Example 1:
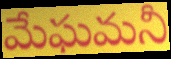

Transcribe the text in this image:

మేఘమనీ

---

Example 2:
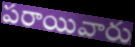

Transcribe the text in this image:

పరాయివారు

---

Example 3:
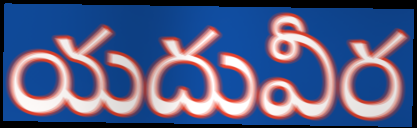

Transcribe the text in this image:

యదువీర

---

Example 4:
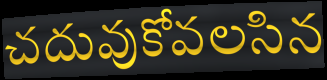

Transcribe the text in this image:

చదువుకోవలసిన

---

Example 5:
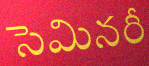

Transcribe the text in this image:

సెమినరీ